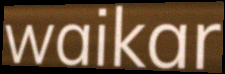
waikar